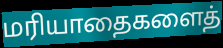
மரியாதைகளைத்